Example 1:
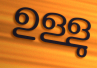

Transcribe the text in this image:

ഉള്ളു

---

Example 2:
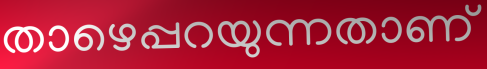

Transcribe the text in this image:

താഴെപ്പറയുന്നതാണ്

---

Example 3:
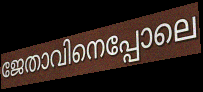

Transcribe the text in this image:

ജേതാവിനെപ്പോലെ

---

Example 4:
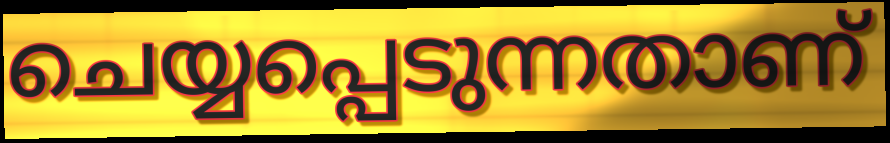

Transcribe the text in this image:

ചെയ്യപ്പെടുന്നതാണ്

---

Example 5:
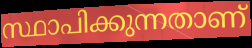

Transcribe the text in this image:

സ്ഥാപിക്കുന്നതാണ്